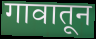
गावातून